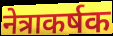
नेत्राकर्षक